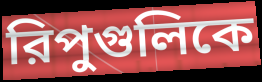
রিপুগুলিকে